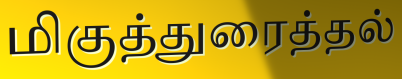
மிகுத்துரைத்தல்